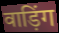
वाड़िंग